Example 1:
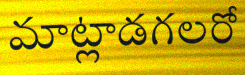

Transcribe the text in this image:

మాట్లాడగలరో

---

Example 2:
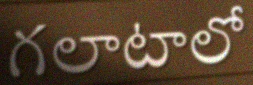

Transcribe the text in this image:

గలాటాలో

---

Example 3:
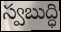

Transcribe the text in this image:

స్వబుద్ధి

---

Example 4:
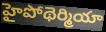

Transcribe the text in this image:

హైపోథెర్మియా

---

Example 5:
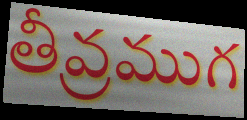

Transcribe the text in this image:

తీవ్రముగ